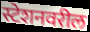
स्टेशनवरील